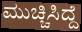
ಮುಚ್ಚಿಸಿದ್ದೆ